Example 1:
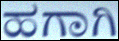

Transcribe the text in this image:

ಹಗಾಗಿ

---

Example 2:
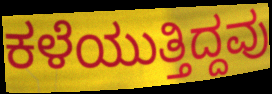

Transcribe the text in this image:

ಕಳೆಯುತ್ತಿದ್ದವು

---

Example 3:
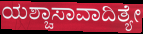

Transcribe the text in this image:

ಯಶ್ಚಾಸಾವಾದಿತ್ಯೇ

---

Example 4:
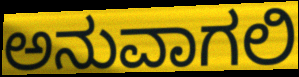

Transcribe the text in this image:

ಅನುವಾಗಲಿ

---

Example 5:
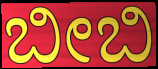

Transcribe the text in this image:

ಬೀಬಿ